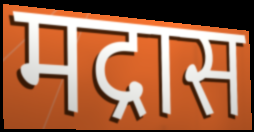
मद्रास